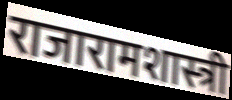
राजारामशास्त्री